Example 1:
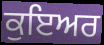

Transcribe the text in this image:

ਕੁਇਅਰ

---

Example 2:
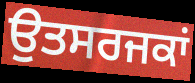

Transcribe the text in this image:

ਉਤਸਰਜਕਾਂ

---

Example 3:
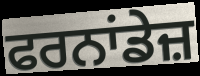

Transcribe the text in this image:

ਫਰਨਾਂਡੇਜ਼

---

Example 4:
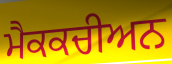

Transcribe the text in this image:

ਮੈਕਕਚੀਅਨ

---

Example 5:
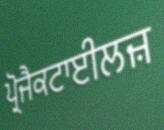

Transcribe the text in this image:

ਪ੍ਰੋਜੈਕਟਾਈਲਜ਼